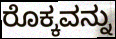
ರೊಕ್ಕವನ್ನು